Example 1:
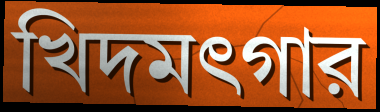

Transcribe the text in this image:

খিদমৎগার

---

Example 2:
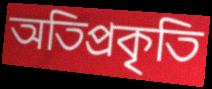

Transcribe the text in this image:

অতিপ্রকৃতি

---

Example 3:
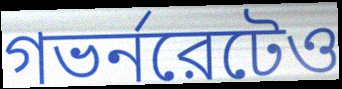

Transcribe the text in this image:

গভর্নরেটেও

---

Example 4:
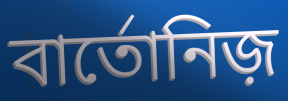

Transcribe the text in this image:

বার্তোনিজ়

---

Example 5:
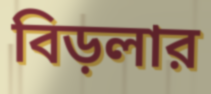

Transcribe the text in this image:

বিড়লার